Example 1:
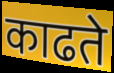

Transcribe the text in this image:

काढते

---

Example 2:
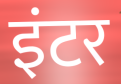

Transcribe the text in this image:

इंटर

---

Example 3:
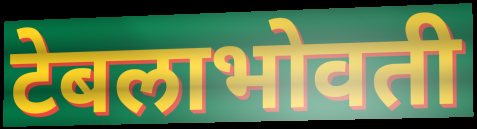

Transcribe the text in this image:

टेबलाभोवती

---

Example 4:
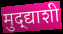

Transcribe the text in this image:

मुद्द्याशी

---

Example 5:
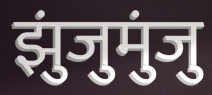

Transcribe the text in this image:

झुंजुमुंजु